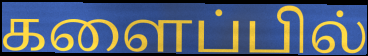
களைப்பில்